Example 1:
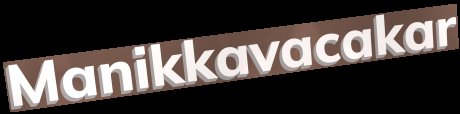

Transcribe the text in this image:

Manikkavacakar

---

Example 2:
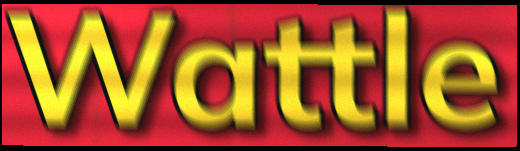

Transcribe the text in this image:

Wattle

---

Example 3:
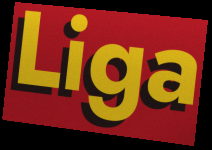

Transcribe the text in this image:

Liga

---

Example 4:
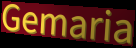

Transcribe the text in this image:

Gemaria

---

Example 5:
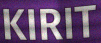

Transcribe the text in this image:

KIRIT